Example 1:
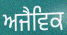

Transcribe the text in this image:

ਅਜੈਵਿਕ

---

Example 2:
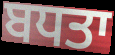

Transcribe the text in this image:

ਬਧਤਾ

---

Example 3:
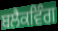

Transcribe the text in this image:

ਬਲੈਕਵਿੰਗ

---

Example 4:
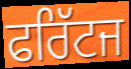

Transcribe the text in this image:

ਫਰਿੱਟਜ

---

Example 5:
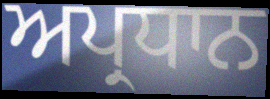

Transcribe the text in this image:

ਅਪ੍ਰਧਾਨ